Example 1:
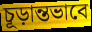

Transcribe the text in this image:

চূড়ান্তভাবে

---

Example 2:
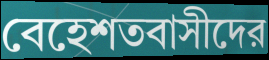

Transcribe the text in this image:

বেহেশতবাসীদের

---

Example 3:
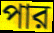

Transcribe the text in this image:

পার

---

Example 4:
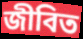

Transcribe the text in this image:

জীবিত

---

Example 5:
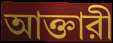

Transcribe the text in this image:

আক্তারী